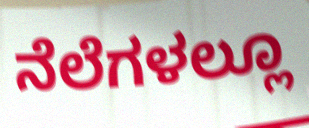
ನೆಲೆಗಳಲ್ಲೂ